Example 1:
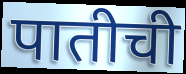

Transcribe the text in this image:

पातीची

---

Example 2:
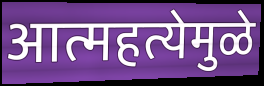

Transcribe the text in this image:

आत्महत्येमुळे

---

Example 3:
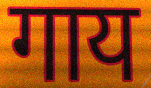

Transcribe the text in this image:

गाय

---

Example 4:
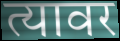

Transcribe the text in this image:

त्‍यावर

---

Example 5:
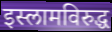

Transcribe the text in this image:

इस्लामविरुद्ध